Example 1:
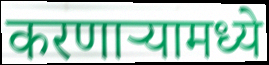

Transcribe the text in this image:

करणाऱ्यामध्ये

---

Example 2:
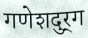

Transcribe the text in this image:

गणेशदुर्ग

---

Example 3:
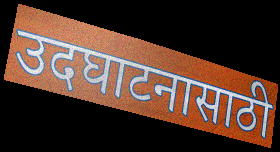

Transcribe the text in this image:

उदघाटनासाठी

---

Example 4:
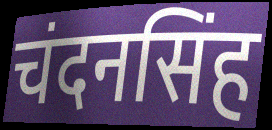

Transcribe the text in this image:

चंदनसिंह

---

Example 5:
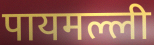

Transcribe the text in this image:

पायमल्ली